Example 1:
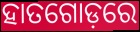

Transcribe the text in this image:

ହାତଗୋଡ଼ରେ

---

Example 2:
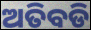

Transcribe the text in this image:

ଅତିବଡି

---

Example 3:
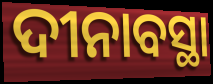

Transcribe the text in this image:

ଦୀନାବସ୍ଥା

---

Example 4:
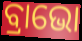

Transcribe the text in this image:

ବ୍ରାଭୋ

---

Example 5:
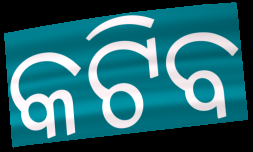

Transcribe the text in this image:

କଟିବ